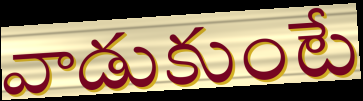
వాడుకుంటే